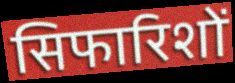
सिफारिशों